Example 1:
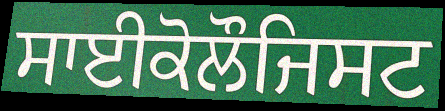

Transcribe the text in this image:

ਸਾਈਕੋਲੌਜਿਸਟ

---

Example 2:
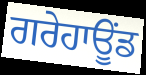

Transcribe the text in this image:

ਗਰੇਹਾਊਂਡ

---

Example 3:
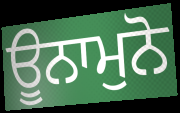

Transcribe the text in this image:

ਊਨਾਮੁਨੋ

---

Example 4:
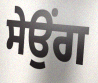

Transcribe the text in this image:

ਸੇਉਂਗ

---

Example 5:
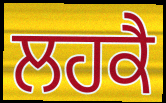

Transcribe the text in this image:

ਲਹਕੈ